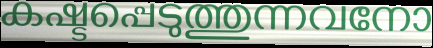
കഷ്ടപ്പെടുത്തുന്നവനോ